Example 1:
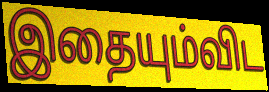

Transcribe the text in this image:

இதையும்விட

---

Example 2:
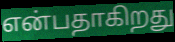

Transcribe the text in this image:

என்பதாகிறது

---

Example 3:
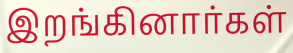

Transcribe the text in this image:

இறங்கினார்கள்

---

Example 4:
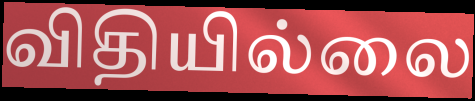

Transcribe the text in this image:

விதியில்லை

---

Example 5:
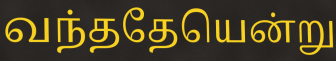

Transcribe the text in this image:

வந்ததேயென்று